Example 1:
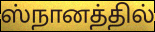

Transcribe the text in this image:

ஸ்நானத்தில்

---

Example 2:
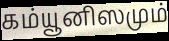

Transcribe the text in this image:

கம்யூனிஸமும்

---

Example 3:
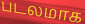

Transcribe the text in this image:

படலமாக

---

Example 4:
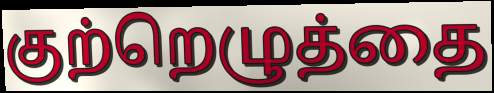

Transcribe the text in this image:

குற்றெழுத்தை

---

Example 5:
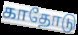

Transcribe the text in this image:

காதோடு